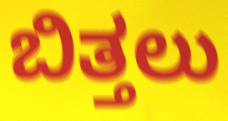
ಬಿತ್ತಲು